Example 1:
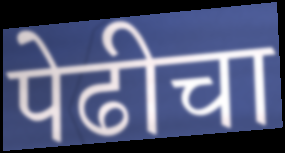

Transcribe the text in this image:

पेढीचा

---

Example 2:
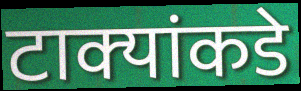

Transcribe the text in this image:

टाक्यांकडे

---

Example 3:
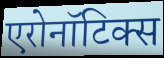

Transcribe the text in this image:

एरोनॉटिक्स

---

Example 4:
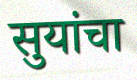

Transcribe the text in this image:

सुयांचा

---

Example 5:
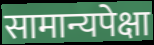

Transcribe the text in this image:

सामान्यपेक्षा